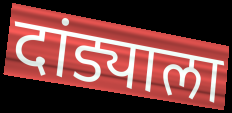
दांड्याला